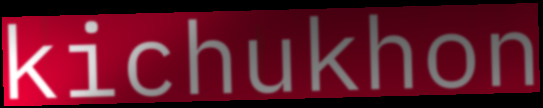
kichukhon